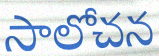
సాలోచన